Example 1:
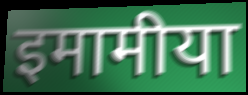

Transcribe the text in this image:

इमामीया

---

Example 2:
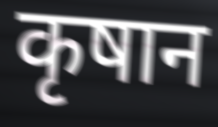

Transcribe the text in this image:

कृषान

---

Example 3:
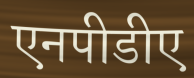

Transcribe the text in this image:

एनपीडीए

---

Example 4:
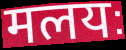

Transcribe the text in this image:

मलयः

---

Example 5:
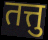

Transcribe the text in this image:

तत्तु